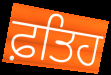
ਫ਼ਤਿਹ